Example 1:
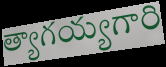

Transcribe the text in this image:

త్యాగయ్యగారి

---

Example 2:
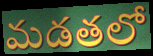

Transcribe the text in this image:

మడతలో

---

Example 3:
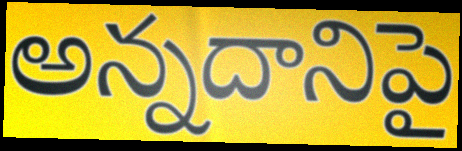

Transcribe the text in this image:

అన్నదానిపై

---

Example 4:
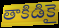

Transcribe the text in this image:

తాకిడికై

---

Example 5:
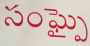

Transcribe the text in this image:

సంఘ్పై